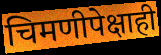
चिमणीपेक्षाही